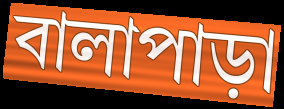
বালাপাড়া